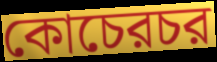
কোচেরচর